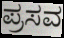
ಪ್ರಸವ